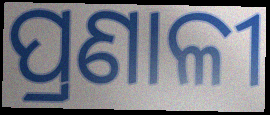
ପ୍ରଣାଳୀ